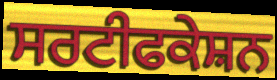
ਸਰਟੀਫਕੇਸ਼ਨ